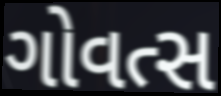
ગોવત્સ